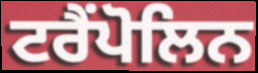
ਟਰੈਂਪੋਲਿਨ